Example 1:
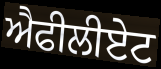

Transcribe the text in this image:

ਐਫੀਲੀਏਟ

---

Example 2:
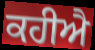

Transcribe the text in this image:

ਕਹੀਐ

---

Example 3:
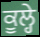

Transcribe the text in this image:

ਕੂਲ੍ਹੇ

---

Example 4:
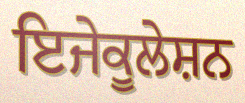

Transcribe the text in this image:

ਇਜੇਕੂਲੇਸ਼ਨ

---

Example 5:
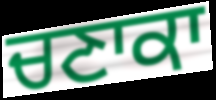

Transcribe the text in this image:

ਚਣਾਕਾ